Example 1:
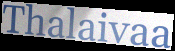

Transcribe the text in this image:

Thalaivaa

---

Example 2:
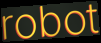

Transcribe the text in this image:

robot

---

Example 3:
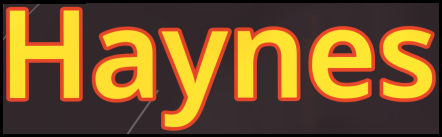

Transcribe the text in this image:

Haynes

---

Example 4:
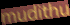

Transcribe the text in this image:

mudithu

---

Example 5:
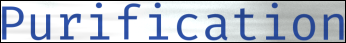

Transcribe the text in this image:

Purification